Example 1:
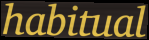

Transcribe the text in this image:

habitual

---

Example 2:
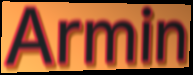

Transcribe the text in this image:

Armin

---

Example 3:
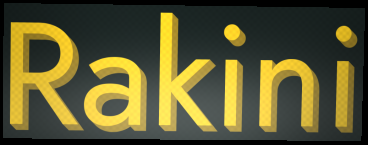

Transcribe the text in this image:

Rakini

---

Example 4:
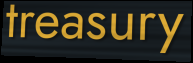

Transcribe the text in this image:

treasury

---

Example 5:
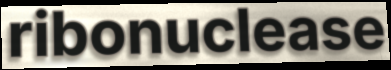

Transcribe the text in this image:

ribonuclease